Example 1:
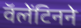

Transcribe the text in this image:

वॅलेंटिनने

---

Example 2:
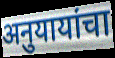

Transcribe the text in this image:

अनुयायांचा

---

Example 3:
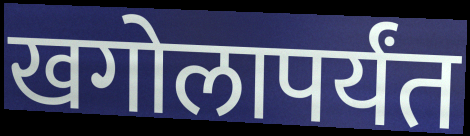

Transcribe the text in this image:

खगोलापर्यंत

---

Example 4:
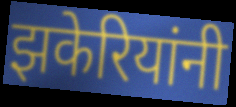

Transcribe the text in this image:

झकेरियांनी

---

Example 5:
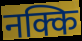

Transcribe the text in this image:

नक्कि